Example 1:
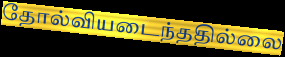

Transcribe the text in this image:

தோல்வியடைந்ததில்லை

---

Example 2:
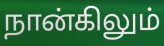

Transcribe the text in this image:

நான்கிலும்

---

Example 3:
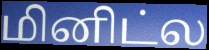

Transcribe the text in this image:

மினிட்ல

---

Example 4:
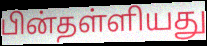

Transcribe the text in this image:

பின்தள்ளியது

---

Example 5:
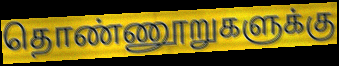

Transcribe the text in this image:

தொண்ணூறுகளுக்கு